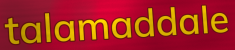
talamaddale